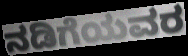
ನಡಿಗೆಯವರ